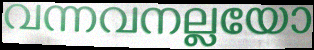
വന്നവനല്ലയോ